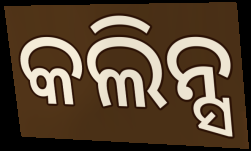
କଲିନ୍ସ